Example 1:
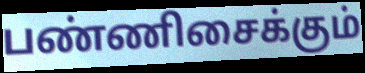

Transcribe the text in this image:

பண்ணிசைக்கும்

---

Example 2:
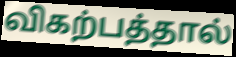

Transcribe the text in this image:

விகற்பத்தால்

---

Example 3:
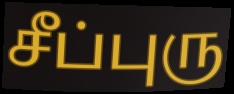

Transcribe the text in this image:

சீப்புரு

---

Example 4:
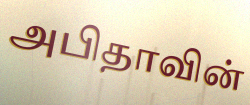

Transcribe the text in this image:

அபிதாவின்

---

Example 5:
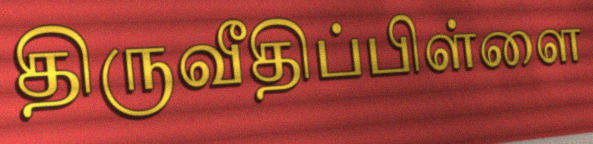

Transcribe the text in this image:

திருவீதிப்பிள்ளை